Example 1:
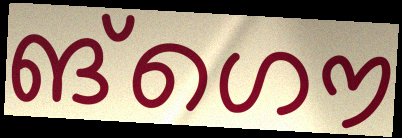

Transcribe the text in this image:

ങ്ഗൌ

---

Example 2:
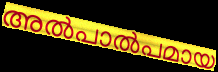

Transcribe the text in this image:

അൽപാൽപമായ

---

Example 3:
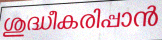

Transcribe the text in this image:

ശുദ്ധീകരിപ്പാൻ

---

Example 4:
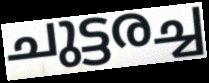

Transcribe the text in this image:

ചുട്ടരച്ച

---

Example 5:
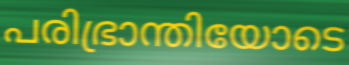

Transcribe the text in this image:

പരിഭ്രാന്തിയോടെ